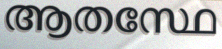
ആതസ്ഥേ